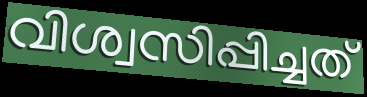
വിശ്വസിപ്പിച്ചത്